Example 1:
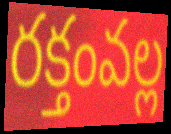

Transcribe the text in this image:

రక్తంవల్ల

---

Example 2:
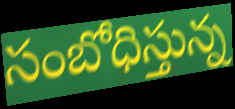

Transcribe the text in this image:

సంబోధిస్తున్న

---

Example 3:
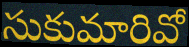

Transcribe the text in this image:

సుకుమారివో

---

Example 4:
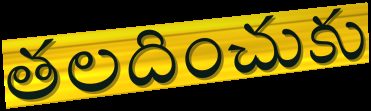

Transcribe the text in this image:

తలదించుకు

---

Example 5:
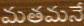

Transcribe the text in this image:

మతమనే